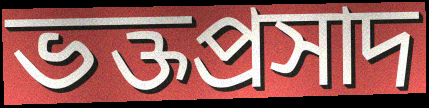
ভক্তপ্রসাদ